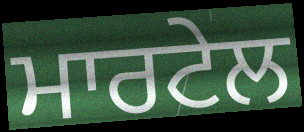
ਮਾਰਟੇਲ